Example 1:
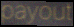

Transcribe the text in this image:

payout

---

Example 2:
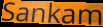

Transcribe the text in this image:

Sankam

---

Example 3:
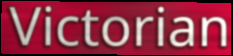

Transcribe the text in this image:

Victorian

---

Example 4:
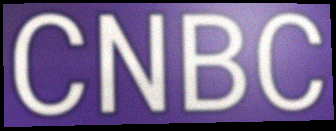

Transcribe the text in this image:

CNBC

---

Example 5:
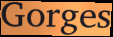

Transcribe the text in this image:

Gorges